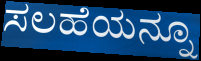
ಸಲಹೆಯನ್ನೂ